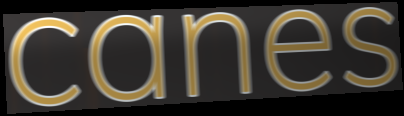
canes